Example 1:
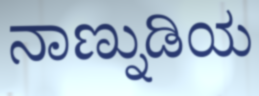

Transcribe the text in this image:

ನಾಣ್ನುಡಿಯ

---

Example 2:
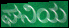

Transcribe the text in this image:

ಘನಿಯ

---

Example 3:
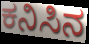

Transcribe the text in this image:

ಕನಿಸಿನ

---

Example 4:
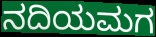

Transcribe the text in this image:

ನದಿಯಮಗ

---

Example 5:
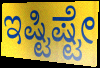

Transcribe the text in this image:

ಇಷ್ಟಿಷ್ಟೇ